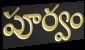
పూర్వం